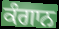
ਕੰਗਾਨ